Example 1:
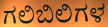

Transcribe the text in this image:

ಗಲಿಬಿಲಿಗಳ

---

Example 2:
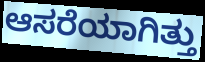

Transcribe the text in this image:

ಆಸರೆಯಾಗಿತ್ತು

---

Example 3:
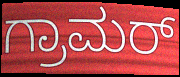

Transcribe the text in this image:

ಗ್ರಾಮರ್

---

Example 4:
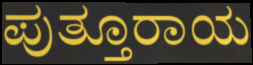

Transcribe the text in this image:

ಪುತ್ತೂರಾಯ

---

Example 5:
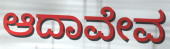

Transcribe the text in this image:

ಆದಾವೇವ